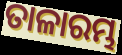
ତାଳାରମ୍ଭ